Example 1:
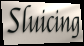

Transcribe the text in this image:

Sluicing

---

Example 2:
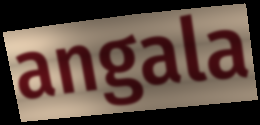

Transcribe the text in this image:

angala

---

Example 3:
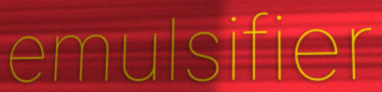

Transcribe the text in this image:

emulsifier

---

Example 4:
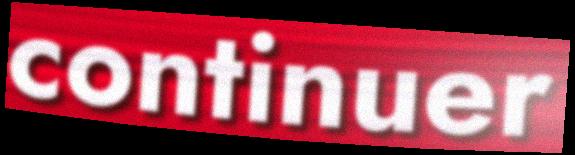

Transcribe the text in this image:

continuer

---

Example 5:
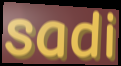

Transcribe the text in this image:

sadi